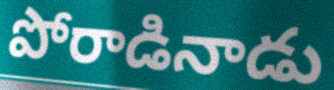
పోరాడినాడు